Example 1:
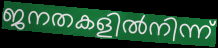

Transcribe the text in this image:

ജനതകളിൽനിന്ന്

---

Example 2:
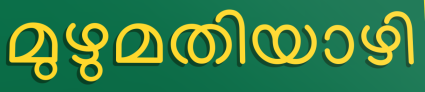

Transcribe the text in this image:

മുഴുമതിയാഴി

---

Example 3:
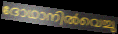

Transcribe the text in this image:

ദോഥാനിൽവെച്ചു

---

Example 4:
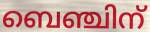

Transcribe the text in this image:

ബെഞ്ചിന്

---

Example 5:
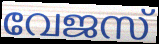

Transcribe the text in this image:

വേജസ്